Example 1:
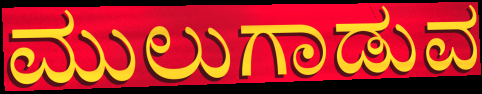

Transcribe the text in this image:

ಮುಲುಗಾಡುವ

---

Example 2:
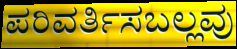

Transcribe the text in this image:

ಪರಿವರ್ತಿಸಬಲ್ಲವು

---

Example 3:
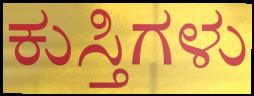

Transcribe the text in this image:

ಕುಸ್ತಿಗಳು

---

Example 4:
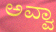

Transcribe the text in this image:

ಅವ್ವಾ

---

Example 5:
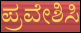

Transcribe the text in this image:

ಪ್ರವೇಶಿಸಿ